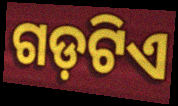
ଗଡ଼ଟିଏ